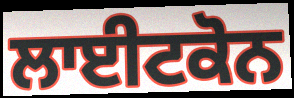
ਲਾਈਟਕੋਨ